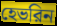
হেভরিন